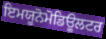
ਇਮਯੂਨੋਮੋਡਿਊਲਟਰ